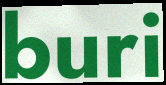
buri